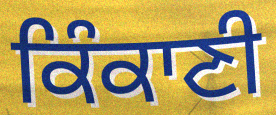
ਕਿੰਕਾਣੀ